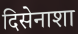
दिसेनाशा